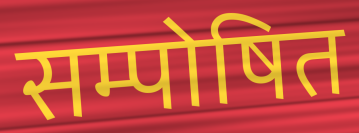
सम्पोषित